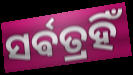
ସର୍ଵତ୍ରହିଁ